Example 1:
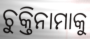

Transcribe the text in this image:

ଚୁକ୍ତିନାମାକୁ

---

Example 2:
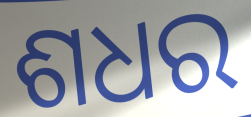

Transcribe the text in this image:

ଶଧର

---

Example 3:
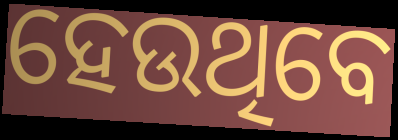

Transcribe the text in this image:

ହେଉଥିବେ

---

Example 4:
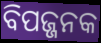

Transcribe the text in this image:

ବିପଜ୍ଜନକ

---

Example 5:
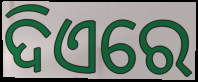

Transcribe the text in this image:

ଦିଏରେ